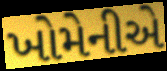
ખોમેનીએ